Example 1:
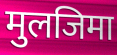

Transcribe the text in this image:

मुलजिमा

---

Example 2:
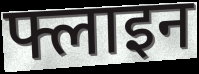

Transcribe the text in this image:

फ्लाइन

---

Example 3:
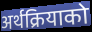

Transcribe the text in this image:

अर्थक्रियाको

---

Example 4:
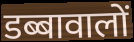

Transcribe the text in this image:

डब्बावालों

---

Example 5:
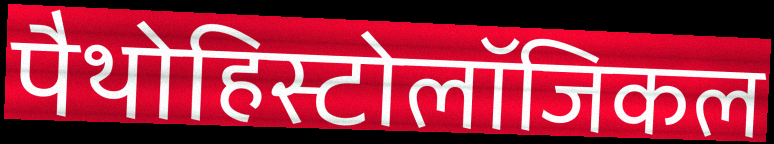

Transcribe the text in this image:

पैथोहिस्टोलॉजिकल